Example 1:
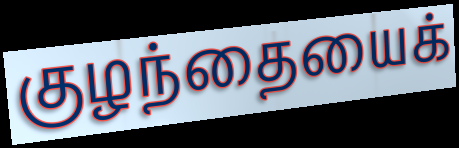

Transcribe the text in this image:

குழந்தையைக்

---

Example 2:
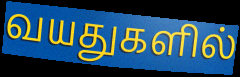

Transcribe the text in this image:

வயதுகளில்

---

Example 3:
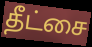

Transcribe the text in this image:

தீட்சை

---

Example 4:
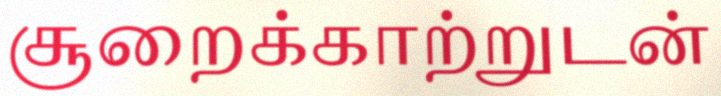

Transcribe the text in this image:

சூறைக்காற்றுடன்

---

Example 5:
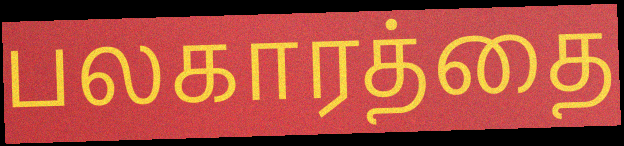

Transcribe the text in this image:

பலகாரத்தை